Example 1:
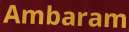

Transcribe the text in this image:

Ambaram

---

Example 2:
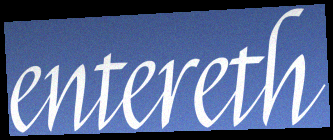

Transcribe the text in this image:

entereth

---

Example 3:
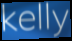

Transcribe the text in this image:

kelly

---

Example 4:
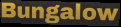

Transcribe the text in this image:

Bungalow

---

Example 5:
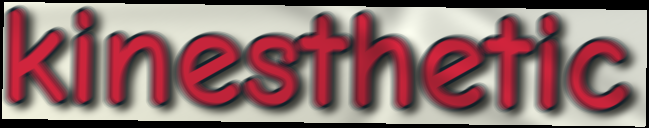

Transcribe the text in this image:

kinesthetic